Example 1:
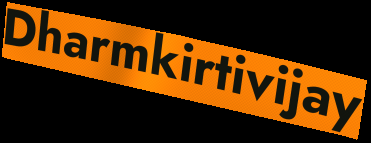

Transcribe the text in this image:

Dharmkirtivijay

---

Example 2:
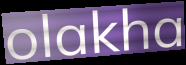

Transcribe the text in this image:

olakha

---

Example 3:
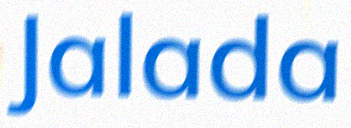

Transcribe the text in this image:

Jalada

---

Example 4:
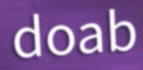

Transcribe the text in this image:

doab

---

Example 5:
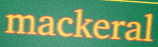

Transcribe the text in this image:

mackeral